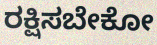
ರಕ್ಷಿಸಬೇಕೋ